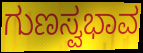
ಗುಣಸ್ವಭಾವ